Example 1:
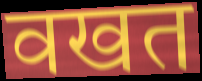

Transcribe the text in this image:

वखत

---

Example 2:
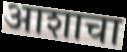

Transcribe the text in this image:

आशाचा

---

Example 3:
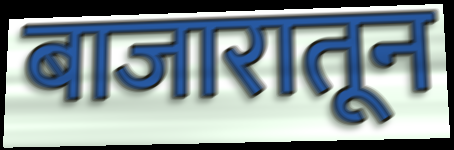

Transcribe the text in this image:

बाजारातून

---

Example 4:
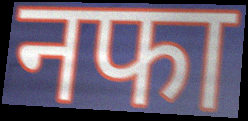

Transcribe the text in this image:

नफा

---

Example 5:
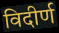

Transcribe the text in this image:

विदीर्ण